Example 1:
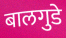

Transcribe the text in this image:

बालगुडे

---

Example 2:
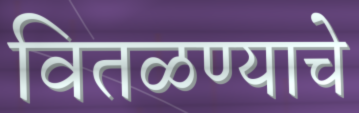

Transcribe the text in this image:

वितळण्याचे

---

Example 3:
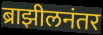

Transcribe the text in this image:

ब्राझीलनंतर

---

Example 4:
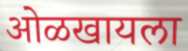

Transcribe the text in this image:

ओळखायला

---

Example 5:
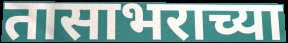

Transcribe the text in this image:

तासाभराच्या